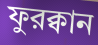
ফুরক্বান